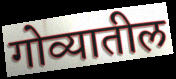
गोव्यातील